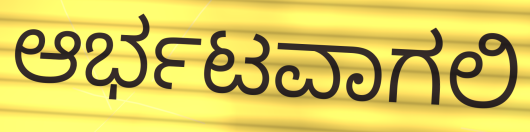
ಆರ್ಭಟವಾಗಲಿ